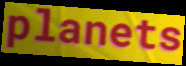
planets